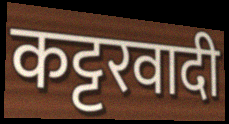
कट्टरवादी